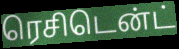
ரெசிடென்ட்